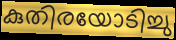
കുതിരയോടിച്ചു